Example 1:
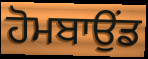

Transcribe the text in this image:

ਹੋਮਬਾਉਂਡ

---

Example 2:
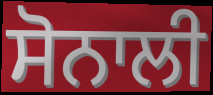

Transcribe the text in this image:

ਸੋਨਾਲੀ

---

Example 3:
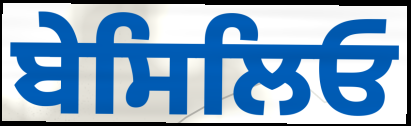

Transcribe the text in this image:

ਬੇਸਿਲਿਓ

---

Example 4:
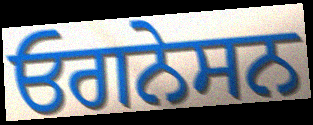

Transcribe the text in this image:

ਓਗਨੇਸਨ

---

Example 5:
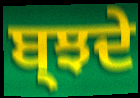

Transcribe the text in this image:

ਬ੍ਝਦੇ